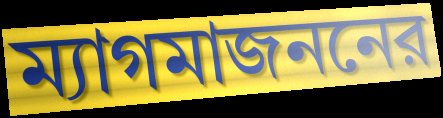
ম্যাগমাজননের